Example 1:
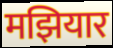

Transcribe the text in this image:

मझियार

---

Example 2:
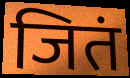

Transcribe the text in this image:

जितं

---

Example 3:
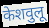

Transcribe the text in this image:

केशवुलू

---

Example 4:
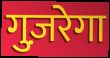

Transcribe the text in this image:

गुज़रेगा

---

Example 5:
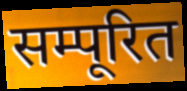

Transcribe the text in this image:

सम्पूरित